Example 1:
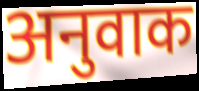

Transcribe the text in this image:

अनुवाक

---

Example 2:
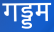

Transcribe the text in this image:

गड्डम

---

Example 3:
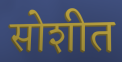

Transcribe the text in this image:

सोशीत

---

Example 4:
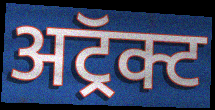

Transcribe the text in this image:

अट्रॅक्ट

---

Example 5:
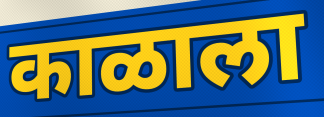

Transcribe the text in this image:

काळाला